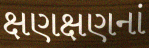
ક્ષણક્ષણનાં